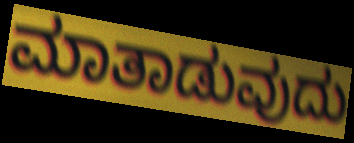
ಮಾತಾಡುವುದು